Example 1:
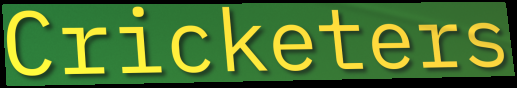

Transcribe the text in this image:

Cricketers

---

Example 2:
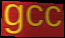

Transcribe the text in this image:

gcc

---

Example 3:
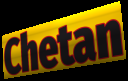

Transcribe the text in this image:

Chetan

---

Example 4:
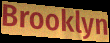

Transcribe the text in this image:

Brooklyn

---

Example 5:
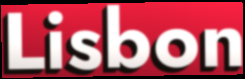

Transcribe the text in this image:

Lisbon